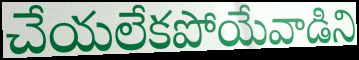
చేయలేకపోయేవాడిని